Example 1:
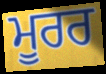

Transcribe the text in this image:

ਮੂਰਰ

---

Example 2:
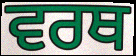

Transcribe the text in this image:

ਵਰਥ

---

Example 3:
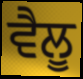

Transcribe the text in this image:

ਵੈਲੂ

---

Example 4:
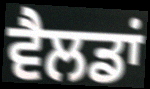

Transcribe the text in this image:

ਵੈਲਡਾਂ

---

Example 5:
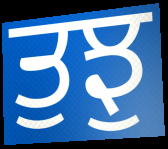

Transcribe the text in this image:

ਤੁਝੁ